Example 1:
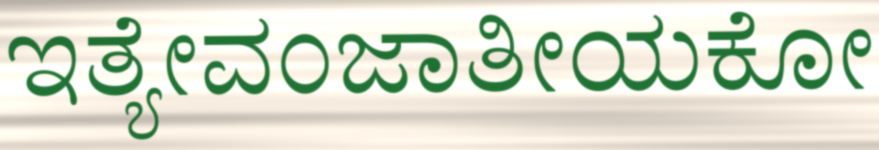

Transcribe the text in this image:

ಇತ್ಯೇವಂಜಾತೀಯಕೋ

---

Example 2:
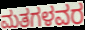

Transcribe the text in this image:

ಮತಗಳವರ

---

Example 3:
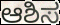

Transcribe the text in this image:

ಆಶಿಸ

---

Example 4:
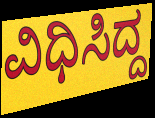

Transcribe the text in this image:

ವಿಧಿಸಿದ್ದ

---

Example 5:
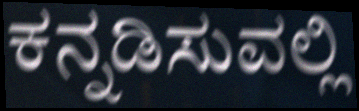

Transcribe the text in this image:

ಕನ್ನಡಿಸುವಲ್ಲಿ